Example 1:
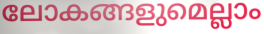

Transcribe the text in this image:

ലോകങ്ങളുമെല്ലാം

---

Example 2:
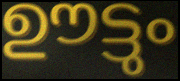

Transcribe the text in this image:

ഊട്ടും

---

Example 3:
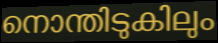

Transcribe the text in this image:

നൊന്തിടുകിലും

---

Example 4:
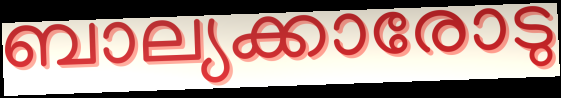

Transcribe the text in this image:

ബാല്യക്കാരോടു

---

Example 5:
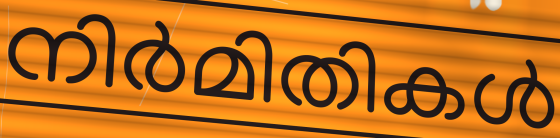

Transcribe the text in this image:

നിർമിതികൾ